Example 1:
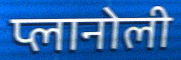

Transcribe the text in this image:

प्लानोली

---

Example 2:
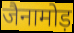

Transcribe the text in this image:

जैनामोड़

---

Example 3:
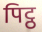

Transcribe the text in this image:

पिट्ठ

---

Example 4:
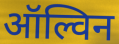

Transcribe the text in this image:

ऑल्विन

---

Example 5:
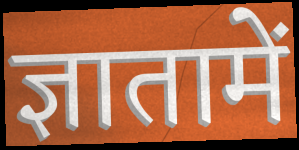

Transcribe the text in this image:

ज्ञातामें